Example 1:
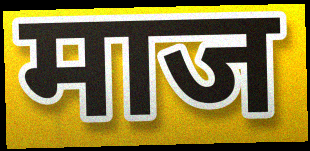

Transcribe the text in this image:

माज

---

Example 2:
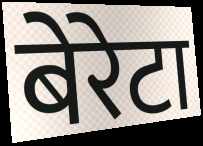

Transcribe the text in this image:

बेरेटा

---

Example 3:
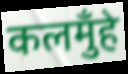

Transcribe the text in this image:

कलमुँहे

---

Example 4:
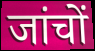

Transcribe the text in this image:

जांचों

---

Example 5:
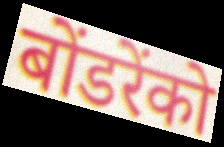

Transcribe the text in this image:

बोंडरेंको